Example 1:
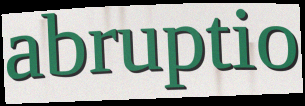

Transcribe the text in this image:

abruptio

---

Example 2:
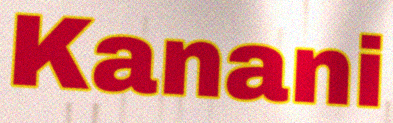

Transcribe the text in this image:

Kanani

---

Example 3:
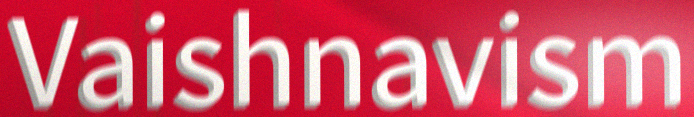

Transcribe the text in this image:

Vaishnavism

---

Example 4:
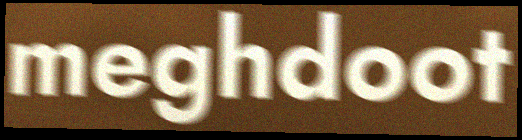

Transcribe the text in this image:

meghdoot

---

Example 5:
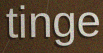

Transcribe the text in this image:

tinge